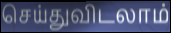
செய்துவிடலாம்